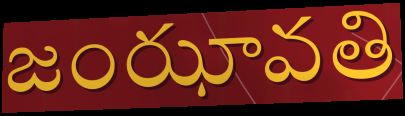
జంఝావతి